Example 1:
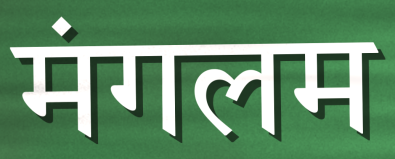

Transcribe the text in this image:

मंगलम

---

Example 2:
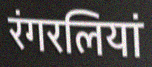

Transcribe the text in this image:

रंगरलियां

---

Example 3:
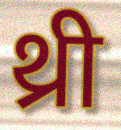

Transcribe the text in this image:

थ्री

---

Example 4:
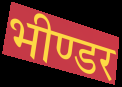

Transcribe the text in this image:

भीण्डर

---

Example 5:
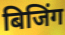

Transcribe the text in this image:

बिजिंग